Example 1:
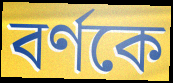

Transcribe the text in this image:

বর্ণকে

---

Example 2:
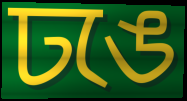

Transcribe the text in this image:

ঢঙে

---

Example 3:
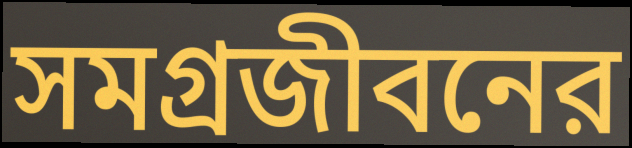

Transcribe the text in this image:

সমগ্রজীবনের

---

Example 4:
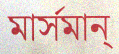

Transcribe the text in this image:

মার্সমান্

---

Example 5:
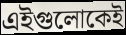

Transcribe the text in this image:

এইগুলোকেই